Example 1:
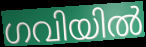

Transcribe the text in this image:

ഗവിയിൽ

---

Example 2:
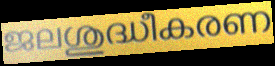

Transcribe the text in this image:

ജലശുദ്ധീകരണ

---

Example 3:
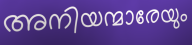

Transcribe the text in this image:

അനിയന്മാരേയും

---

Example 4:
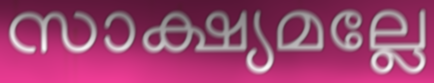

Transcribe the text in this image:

സാക്ഷ്യമല്ലേ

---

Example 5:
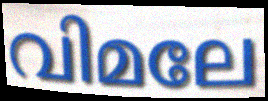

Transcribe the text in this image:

വിമലേ